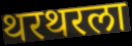
थरथरला